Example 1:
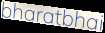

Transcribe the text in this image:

bharatbhai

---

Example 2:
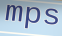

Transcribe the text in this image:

mps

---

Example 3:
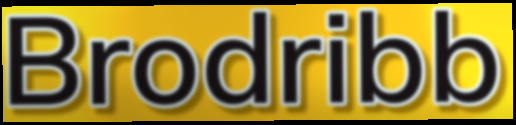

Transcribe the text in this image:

Brodribb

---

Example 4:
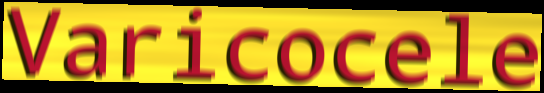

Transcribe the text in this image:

Varicocele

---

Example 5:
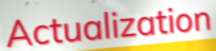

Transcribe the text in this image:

Actualization